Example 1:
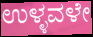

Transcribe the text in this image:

ಉಳ್ಳವಳೇ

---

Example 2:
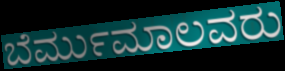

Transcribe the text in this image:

ಬೆರ್ಮುಮಾಲವರು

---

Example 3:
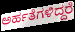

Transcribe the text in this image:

ಅರ್ಹತೆಗಳಿದ್ದರೆ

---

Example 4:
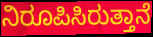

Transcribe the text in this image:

ನಿರೂಪಿಸಿರುತ್ತಾನೆ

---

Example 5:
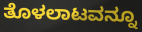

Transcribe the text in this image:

ತೊಳಲಾಟವನ್ನೂ